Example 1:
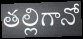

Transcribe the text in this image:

తల్లిగానో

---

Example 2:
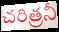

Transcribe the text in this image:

చరిత్రనీ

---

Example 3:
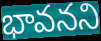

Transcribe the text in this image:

భావనని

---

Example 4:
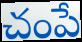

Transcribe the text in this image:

చంపే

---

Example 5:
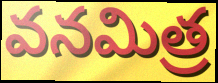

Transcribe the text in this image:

వనమిత్ర